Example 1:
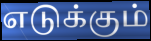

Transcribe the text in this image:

எடுக்கும்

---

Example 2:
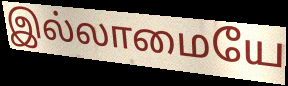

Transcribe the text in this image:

இல்லாமையே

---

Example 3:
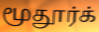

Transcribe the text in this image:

மூதூர்க்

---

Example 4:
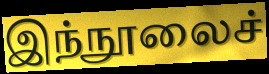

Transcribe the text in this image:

இந்நூலைச்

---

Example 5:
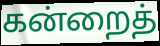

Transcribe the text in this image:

கன்றைத்